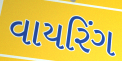
વાયરિંગ